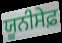
ਯੂਨੀਸੇਫ਼